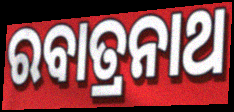
ରବାତ୍ରନାଥ